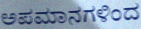
ಅಪಮಾನಗಳಿಂದ